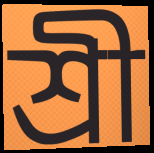
শ্ৰী